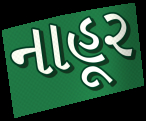
નાહૂર